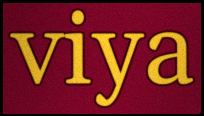
viya